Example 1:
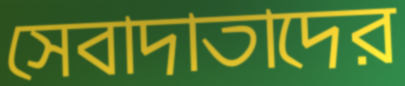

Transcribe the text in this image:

সেবাদাতাদের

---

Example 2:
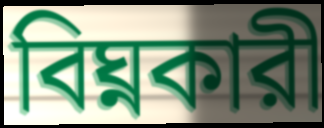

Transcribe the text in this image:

বিঘ্নকারী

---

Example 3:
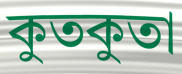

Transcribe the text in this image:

কুতকুতা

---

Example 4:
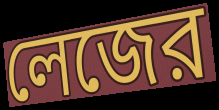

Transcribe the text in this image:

লেজের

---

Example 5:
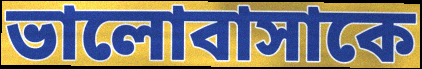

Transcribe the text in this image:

ভালোবাসাকে